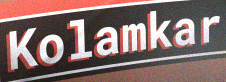
Kolamkar